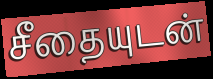
சீதையுடன்